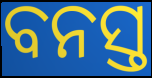
ବନସ୍ତ